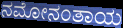
ನಮೋನಂತಾಯ